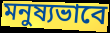
মনুষ্যভাবে